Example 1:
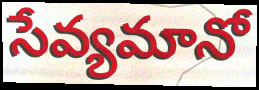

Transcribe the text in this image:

సేవ్యమానో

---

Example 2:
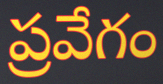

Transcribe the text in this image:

ప్రవేగం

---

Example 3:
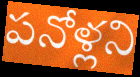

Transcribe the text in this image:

పనోళ్లని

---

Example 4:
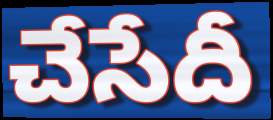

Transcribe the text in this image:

చేసేదీ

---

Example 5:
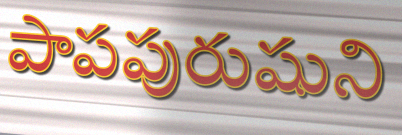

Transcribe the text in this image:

పాపపురుషుని